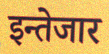
इन्तेजार